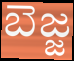
బెజ్జ